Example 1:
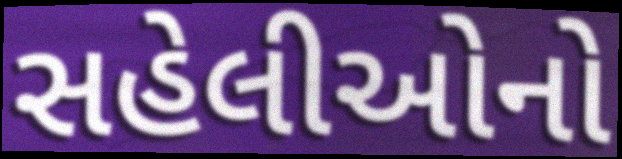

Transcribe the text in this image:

સહેલીઓનો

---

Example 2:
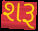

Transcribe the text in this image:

શરૂ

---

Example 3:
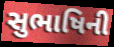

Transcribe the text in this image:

સુભાષિની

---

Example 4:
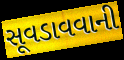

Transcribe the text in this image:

સૂવડાવવાની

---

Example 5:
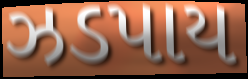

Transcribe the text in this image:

ઝડપાય